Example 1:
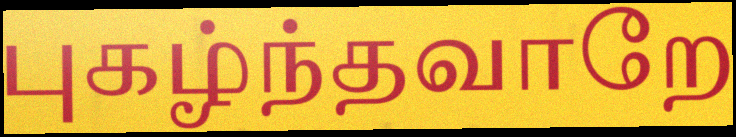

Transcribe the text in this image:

புகழ்ந்தவாறே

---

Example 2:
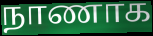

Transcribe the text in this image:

நாணாக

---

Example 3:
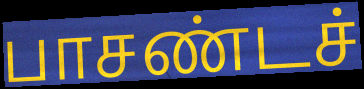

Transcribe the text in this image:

பாசண்டச்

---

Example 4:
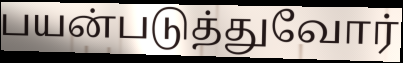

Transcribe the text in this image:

பயன்படுத்துவோர்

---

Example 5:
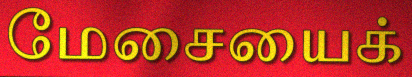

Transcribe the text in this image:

மேசையைக்